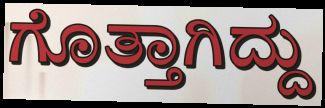
ಗೊತ್ತಾಗಿದ್ದು